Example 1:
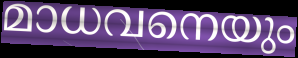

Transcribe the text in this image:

മാധവനെയും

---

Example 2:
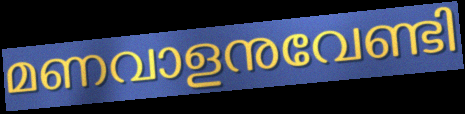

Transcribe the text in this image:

മണവാളനുവേണ്ടി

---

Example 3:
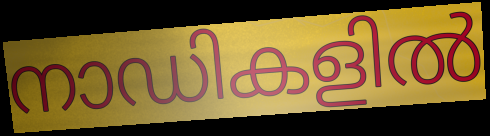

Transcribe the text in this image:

നാഡികളിൽ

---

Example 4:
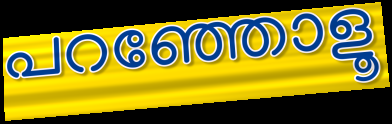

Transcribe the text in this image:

പറഞ്ഞോളൂ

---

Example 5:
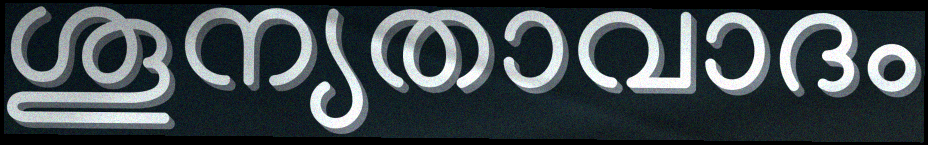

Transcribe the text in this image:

ശൂന്യതാവാദം